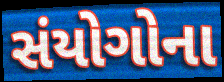
સંયોગોના